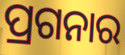
ପ୍ରଗନାର